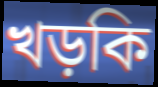
খড়কি